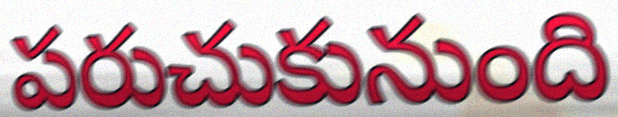
పరుచుకునుంది